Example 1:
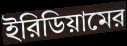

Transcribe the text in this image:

ইরিডিয়ামের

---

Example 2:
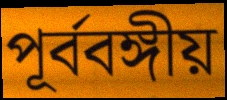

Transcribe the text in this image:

পূর্ববঙ্গীয়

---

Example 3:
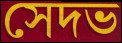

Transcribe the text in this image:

সেদভ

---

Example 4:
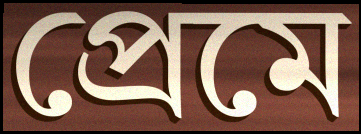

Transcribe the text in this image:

প্রেমে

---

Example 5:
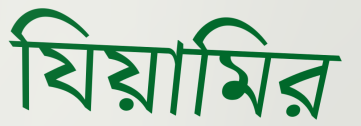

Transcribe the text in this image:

যিয়ামির